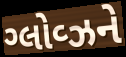
ગ્લોવ્ઝને